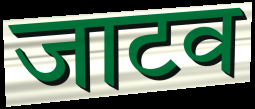
जाटव